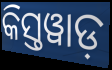
କିସ୍ତୱାଡ଼